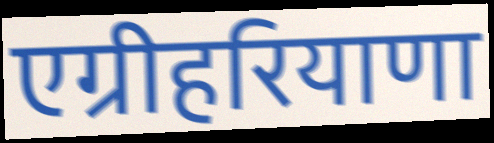
एग्रीहरियाणा